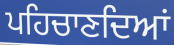
ਪਹਿਚਾਣਦਿਆਂ